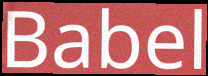
Babel